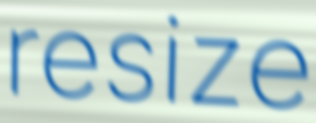
resize